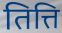
तित्ति